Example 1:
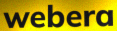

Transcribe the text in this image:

webera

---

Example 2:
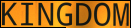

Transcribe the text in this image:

KINGDOM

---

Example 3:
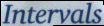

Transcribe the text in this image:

Intervals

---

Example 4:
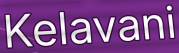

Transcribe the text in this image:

Kelavani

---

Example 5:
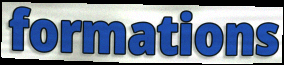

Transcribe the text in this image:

formations